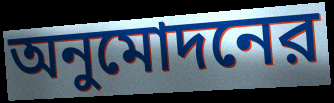
অনুমোদনের